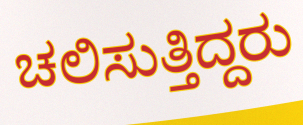
ಚಲಿಸುತ್ತಿದ್ದರು